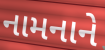
નામનાને